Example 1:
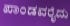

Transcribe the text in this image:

ಪಾಂಡವರೈದು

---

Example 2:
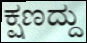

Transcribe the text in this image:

ಕ್ಷಣದ್ದು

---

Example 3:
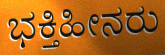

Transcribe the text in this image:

ಭಕ್ತಿಹೀನರು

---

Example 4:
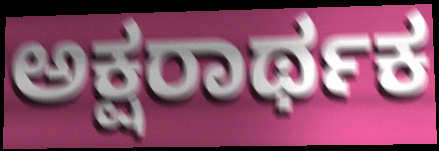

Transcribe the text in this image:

ಅಕ್ಷರಾರ್ಥಕ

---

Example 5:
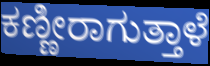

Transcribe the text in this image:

ಕಣ್ಣೀರಾಗುತ್ತಾಳೆ